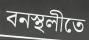
বনস্থলীতে